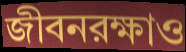
জীবনরক্ষাও